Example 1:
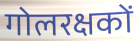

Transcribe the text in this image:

गोलरक्षकों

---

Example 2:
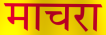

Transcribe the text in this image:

माचरा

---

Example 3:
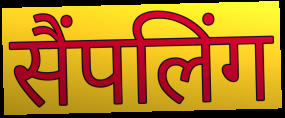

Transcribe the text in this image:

सैंपलिंग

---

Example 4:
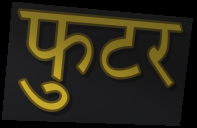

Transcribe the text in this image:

फुटर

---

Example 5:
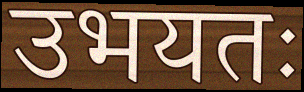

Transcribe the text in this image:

उभयतः